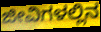
ಜೀವಿಗಳಲ್ಲಿನ